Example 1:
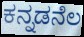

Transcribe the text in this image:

ಕನ್ನಡನೆಲ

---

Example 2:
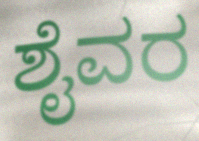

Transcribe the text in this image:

ಶೈವರ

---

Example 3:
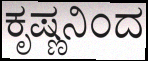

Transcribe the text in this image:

ಕೃಷ್ಣನಿಂದ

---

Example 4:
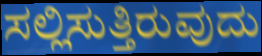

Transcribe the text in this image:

ಸಲ್ಲಿಸುತ್ತಿರುವುದು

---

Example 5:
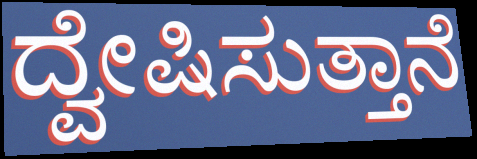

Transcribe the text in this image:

ದ್ವೇಷಿಸುತ್ತಾನೆ